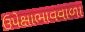
ઉપેક્ષાભાવવાળા